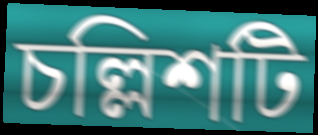
চল্লিশটি